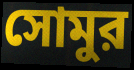
সোমুর